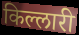
किल्लारी